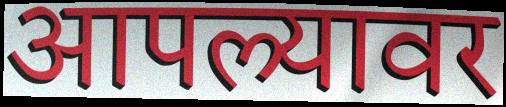
आपल्यावर